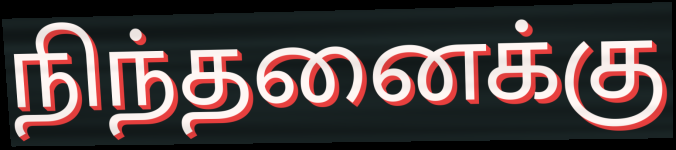
நிந்தனைக்கு